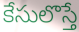
కేసులొస్తే